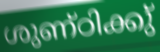
ശുണ്ഠിക്കു്